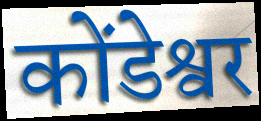
कोंडेश्वर